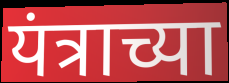
यंत्राच्या